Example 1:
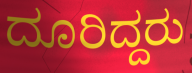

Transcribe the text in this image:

ದೂರಿದ್ದರು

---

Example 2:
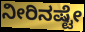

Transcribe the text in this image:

ನೀರಿನಷ್ಟೇ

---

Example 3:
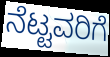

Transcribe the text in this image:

ನೆಟ್ಟವರಿಗೆ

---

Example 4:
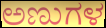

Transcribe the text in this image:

ಅಣುಗಳ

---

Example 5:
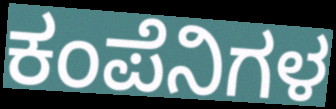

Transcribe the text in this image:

ಕಂಪೆನಿಗಳ